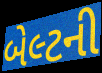
બેલ્ટની